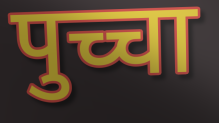
पुच्चा